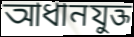
আধানযুক্ত